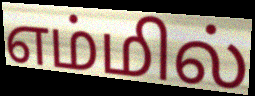
எம்மில்